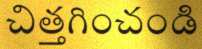
చిత్తగించండి